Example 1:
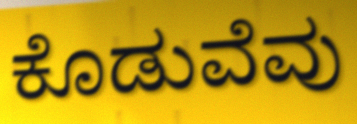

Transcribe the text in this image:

ಕೊಡುವೆವು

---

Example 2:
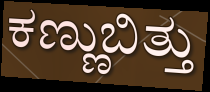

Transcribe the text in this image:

ಕಣ್ಣುಬಿತ್ತು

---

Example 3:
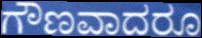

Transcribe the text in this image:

ಗೌಣವಾದರೂ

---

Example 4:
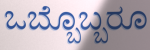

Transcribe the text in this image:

ಒಬ್ಬೊಬ್ಬರೂ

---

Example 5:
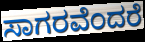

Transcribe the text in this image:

ಸಾಗರವೆಂದರೆ